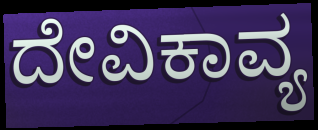
ದೇವಿಕಾವ್ಯ